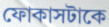
ফোকাসটাকে